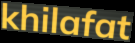
khilafat